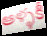
ఆళ్ళకీ